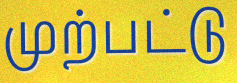
முற்பட்டு